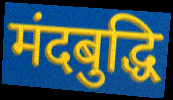
मंदबुद्धि